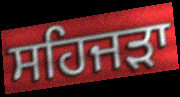
ਸਹਿਜੜਾ